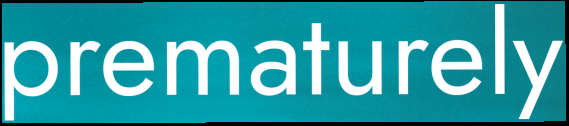
prematurely